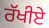
ਰੱਖੀਏ